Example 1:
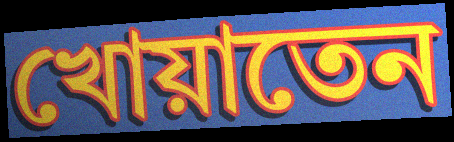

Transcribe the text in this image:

খোয়াতেন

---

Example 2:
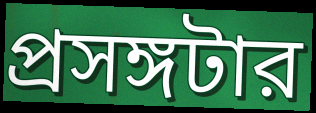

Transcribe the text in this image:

প্রসঙ্গটার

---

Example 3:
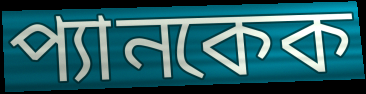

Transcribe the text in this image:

প্যানকেক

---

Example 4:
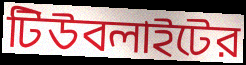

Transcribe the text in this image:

টিউবলাইটের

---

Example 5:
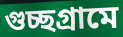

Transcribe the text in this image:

গুচ্ছগ্রামে